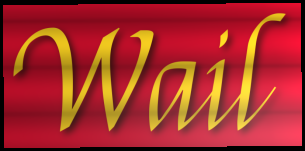
Wail